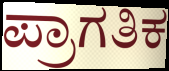
ಪ್ರಾಗತಿಕ